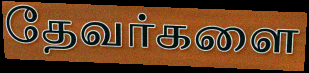
தேவர்களை